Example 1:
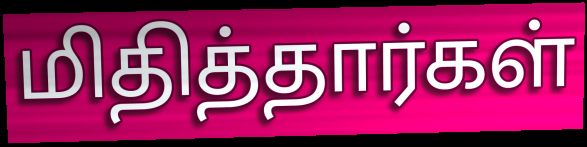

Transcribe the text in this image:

மிதித்தார்கள்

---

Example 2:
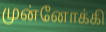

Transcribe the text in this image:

முன்னோக்கி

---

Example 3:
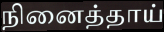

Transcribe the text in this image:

நினைத்தாய்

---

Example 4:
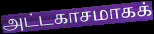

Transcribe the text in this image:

அட்டகாசமாகக்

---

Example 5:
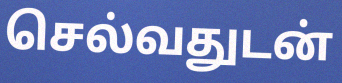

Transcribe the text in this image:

செல்வதுடன்